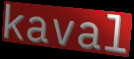
kaval